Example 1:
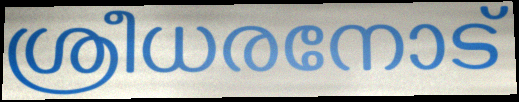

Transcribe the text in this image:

ശ്രീധരനോട്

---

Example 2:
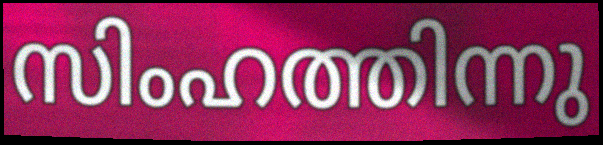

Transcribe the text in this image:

സിംഹത്തിന്നു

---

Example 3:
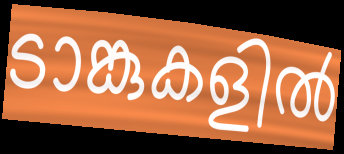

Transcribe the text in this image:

ടാങ്കുകളിൽ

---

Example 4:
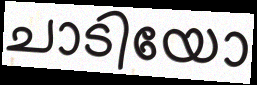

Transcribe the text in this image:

ചാടിയോ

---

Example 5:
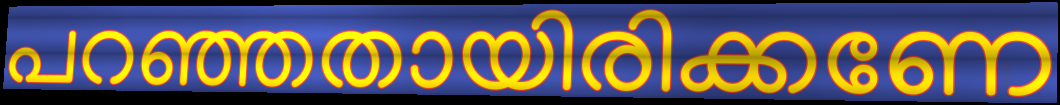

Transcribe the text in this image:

പറഞ്ഞതായിരിക്കണേ